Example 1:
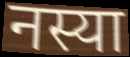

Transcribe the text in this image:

नस्या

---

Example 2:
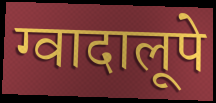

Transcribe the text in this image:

ग्वादालूपे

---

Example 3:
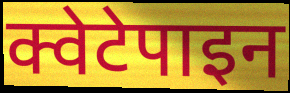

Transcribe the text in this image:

क्वेटेपाइन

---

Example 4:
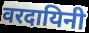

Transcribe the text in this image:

वरदायिनी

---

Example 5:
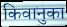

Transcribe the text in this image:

किवानुका